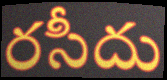
రసీదు